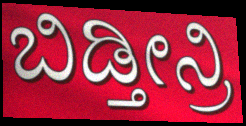
ಬಿಡ್ತೀನ್ರಿ